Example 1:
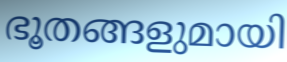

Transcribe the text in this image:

ഭൂതങ്ങളുമായി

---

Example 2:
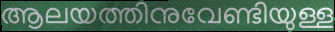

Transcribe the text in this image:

ആലയത്തിനുവേണ്ടിയുള്ള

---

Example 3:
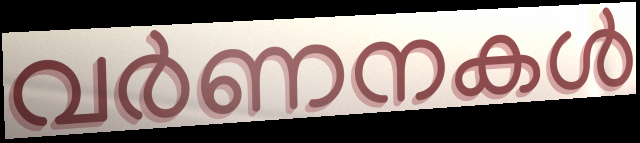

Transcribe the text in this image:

വർണനകൾ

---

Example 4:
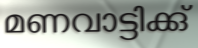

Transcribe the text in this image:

മണവാട്ടിക്കു്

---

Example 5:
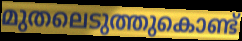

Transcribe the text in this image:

മുതലെടുത്തുകൊണ്ട്